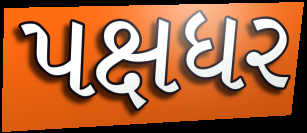
પક્ષધર